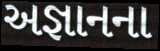
અજ્ઞાનના